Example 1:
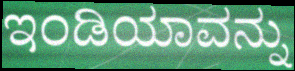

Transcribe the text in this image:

ಇಂಡಿಯಾವನ್ನು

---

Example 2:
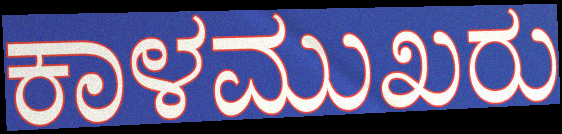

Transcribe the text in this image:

ಕಾಳಮುಖರು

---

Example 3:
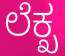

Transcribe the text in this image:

ಲೆಕ್ಖ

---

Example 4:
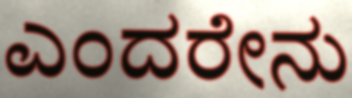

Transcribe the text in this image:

ಎಂದರೇನು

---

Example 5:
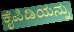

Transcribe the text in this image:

ಕೈಪಿಡಿಯನ್ನು